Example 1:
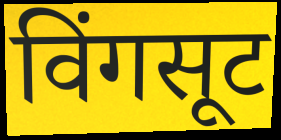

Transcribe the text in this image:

विंगसूट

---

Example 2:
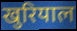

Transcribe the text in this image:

खुरियाल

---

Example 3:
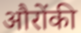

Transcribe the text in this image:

औरोंकी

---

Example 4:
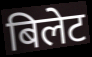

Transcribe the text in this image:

बिलेट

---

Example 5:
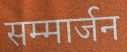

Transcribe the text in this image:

सम्मार्जन